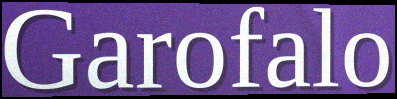
Garofalo